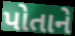
પોતાને